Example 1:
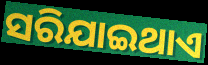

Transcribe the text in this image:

ସରିଯାଇଥାଏ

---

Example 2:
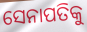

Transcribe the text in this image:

ସେନାପତିକୁ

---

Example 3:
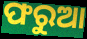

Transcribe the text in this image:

ଫରୁଆ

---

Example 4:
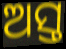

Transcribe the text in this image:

ଅସ୍ତ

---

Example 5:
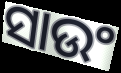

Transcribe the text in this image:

ସାଉଂ